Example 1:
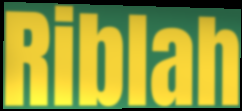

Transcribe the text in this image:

Riblah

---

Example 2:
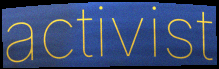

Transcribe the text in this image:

activist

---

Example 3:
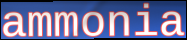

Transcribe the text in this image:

ammonia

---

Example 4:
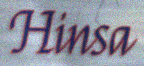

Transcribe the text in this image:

Hinsa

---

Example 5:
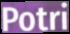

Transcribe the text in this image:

Potri